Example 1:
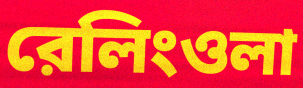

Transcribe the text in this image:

রেলিংওলা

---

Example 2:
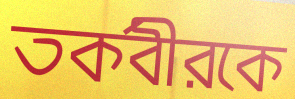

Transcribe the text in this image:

তর্কবীরকে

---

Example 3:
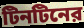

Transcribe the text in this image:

টিনটিনের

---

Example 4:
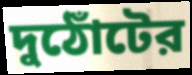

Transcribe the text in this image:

দুঠোঁটের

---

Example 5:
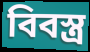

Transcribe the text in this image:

বিবস্ত্র